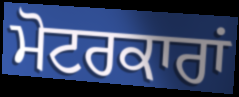
ਮੋਟਰਕਾਰਾਂ